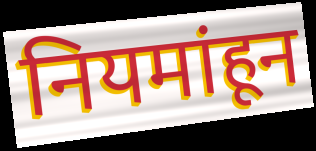
नियमांहून